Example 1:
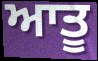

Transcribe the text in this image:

ਆਤੂ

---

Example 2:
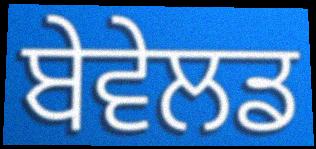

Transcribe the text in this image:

ਬੇਵੇਲਡ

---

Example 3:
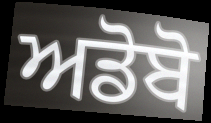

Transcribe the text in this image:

ਅਡੋਬੋ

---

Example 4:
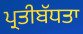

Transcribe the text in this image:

ਪ੍ਰਤੀਬੱਧਤਾ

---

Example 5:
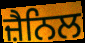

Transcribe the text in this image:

ਜ਼ੈਨਿਲ